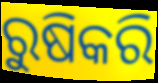
ରୁଷିକରି